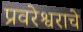
प्रवरेश्वराचे